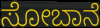
ಸೋಬಾನೆ